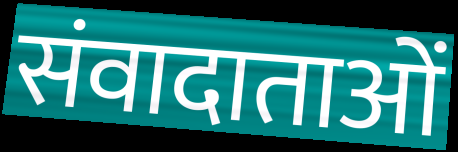
संवादाताओं